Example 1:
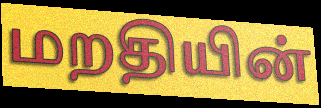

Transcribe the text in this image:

மறதியின்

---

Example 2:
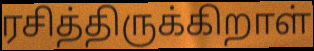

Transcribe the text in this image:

ரசித்திருக்கிறாள்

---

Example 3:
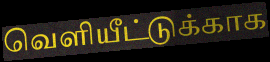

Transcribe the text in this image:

வெளியீட்டுக்காக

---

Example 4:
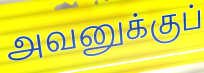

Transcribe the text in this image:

அவனுக்குப்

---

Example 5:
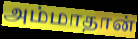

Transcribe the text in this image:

அம்மாதான்